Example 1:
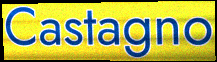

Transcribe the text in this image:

Castagno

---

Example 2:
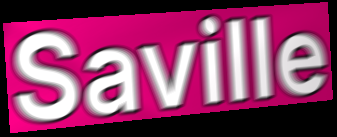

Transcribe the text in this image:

Saville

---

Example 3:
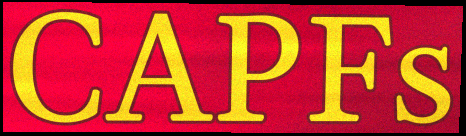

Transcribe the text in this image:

CAPFs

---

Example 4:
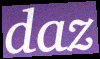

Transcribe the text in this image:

daz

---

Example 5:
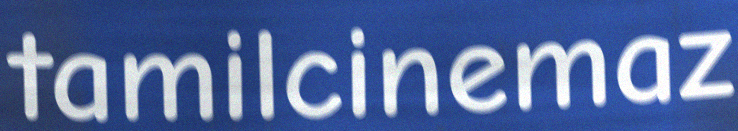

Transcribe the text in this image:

tamilcinemaz